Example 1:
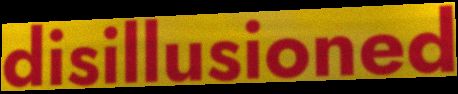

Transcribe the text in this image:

disillusioned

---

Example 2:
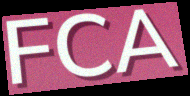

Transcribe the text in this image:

FCA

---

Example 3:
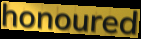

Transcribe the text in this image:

honoured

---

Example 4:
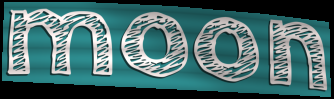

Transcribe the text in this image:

moon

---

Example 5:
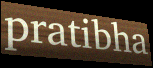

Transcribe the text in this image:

pratibha